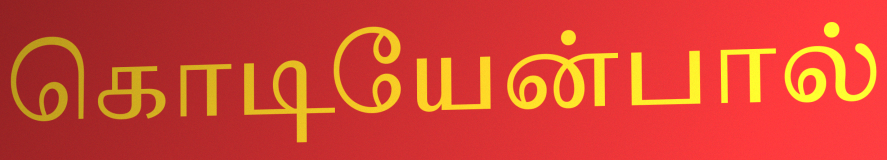
கொடியேன்பால்